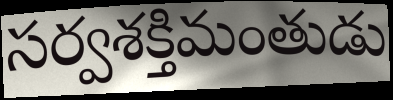
సర్వశక్తిమంతుడు